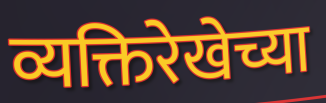
व्यक्तिरेखेच्या